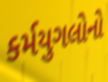
કર્મયુગલોનો